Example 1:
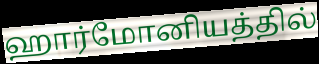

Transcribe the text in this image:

ஹார்மோனியத்தில்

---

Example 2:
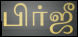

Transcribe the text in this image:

பிர்ஜீ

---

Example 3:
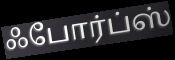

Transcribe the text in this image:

ஃபோர்ப்ஸ்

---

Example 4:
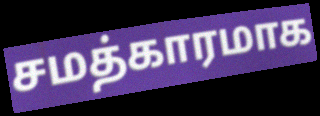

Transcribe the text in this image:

சமத்காரமாக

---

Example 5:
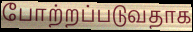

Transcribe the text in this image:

போற்றப்படுவதாக